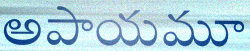
అపాయమూ